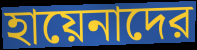
হায়েনাদের